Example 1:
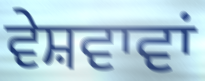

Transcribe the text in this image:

ਵੇਸ਼ਵਾਵਾਂ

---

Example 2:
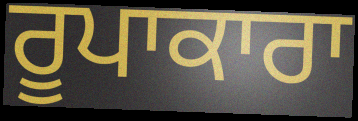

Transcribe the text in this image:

ਰੂਪਾਕਾਰਾ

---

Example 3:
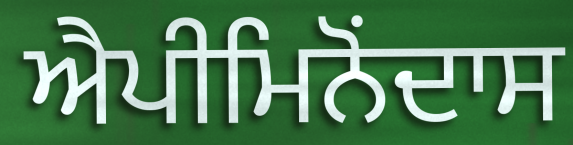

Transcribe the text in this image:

ਐਪੀਮਿਨੋਂਦਾਸ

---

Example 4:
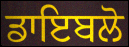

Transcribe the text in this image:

ਡਾਇਬਲੋ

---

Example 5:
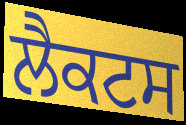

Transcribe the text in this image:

ਲੈਕਟਸ